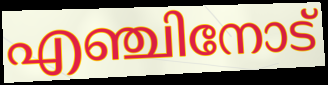
എഞ്ചിനോട്